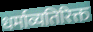
धर्माव्यतिरिक्त